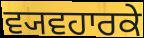
ਵ੍ਯਵਹਾਰਕੇ